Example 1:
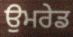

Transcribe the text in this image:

ਉਮਰੇਡ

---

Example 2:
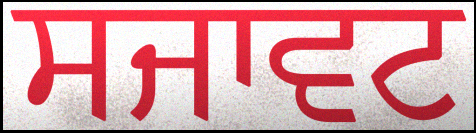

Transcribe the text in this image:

ਸਜਾਵਟ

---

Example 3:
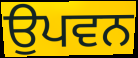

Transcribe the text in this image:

ਉਪਵਨ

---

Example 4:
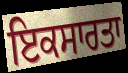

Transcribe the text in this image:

ਇਕਸਾਰਤਾ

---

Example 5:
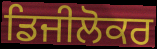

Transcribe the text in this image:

ਡਿਜੀਲੋਕਰ